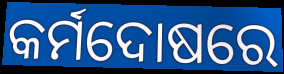
କର୍ମଦୋଷରେ